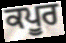
ਕਪੂਰ